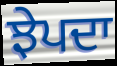
ਝੇਪਦਾ